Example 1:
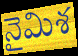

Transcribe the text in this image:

నైమిశ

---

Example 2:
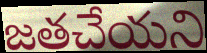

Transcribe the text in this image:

జతచేయని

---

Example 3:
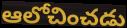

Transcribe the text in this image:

ఆలోచించడు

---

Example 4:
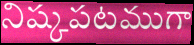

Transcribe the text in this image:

నిష్కపటముగా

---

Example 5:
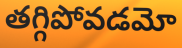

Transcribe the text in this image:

తగ్గిపోవడమో